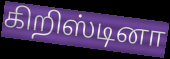
கிறிஸ்டினா